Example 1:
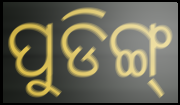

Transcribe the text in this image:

ପୁଡିଙ୍ଗ୍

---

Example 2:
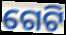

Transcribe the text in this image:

ଗେଟି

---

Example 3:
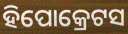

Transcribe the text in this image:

ହିପୋକ୍ରେଟସ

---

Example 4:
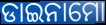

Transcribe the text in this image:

ଡାଇନାମୋ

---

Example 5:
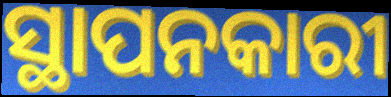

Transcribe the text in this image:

ସ୍ଥାପନକାରୀ